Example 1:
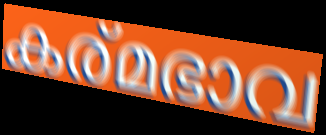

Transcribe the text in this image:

കര്മഭാവ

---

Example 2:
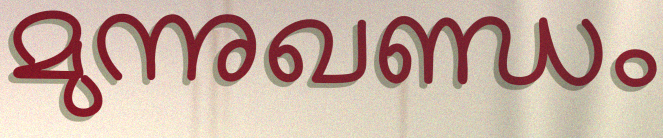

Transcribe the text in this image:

മുന്നുഖണ്ഡം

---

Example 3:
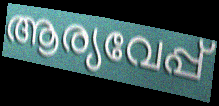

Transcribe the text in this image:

ആര്യവേപ്പ്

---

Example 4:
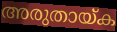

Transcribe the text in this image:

അരുതായ്ക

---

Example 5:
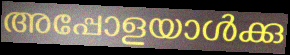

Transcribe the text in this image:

അപ്പോളയാൾക്കു